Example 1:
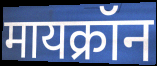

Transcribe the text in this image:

मायक्रॉन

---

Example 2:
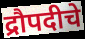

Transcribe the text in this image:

द्रौपदीचे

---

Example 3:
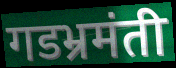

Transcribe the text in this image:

गडभ्रमंती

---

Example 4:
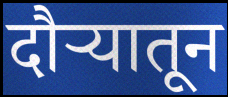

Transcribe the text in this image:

दौर्‍यातून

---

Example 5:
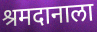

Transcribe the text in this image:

श्रमदानाला